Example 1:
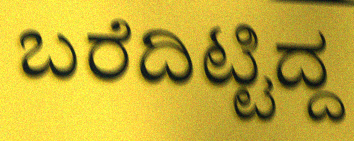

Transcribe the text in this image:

ಬರೆದಿಟ್ಟಿದ್ದ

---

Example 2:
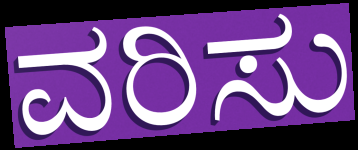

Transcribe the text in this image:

ವರಿಸು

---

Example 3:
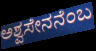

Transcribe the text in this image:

ಅಶ್ವಸೇನನೆಂಬ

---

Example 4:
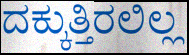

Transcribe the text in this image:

ದಕ್ಕುತ್ತಿರಲಿಲ್ಲ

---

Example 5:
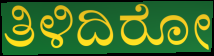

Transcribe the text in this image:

ತಿಳಿದಿರೋ